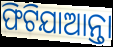
ଫିଟିଯାଆନ୍ତା